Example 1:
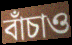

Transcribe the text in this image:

বাঁচাও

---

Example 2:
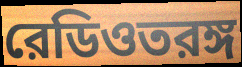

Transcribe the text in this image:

রেডিওতরঙ্গ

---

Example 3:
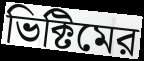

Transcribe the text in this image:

ভিক্টিমের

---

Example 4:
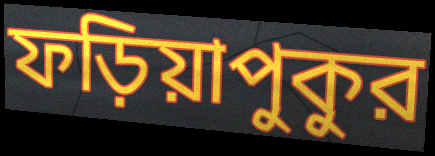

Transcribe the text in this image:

ফড়িয়াপুকুর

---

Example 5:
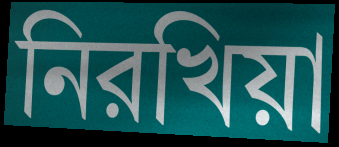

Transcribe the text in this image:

নিরখিয়া